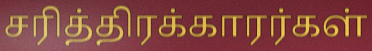
சரித்திரக்காரர்கள்